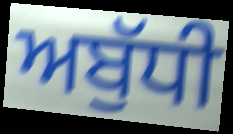
ਅਬੁੱਧੀ